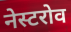
नेस्टरोव